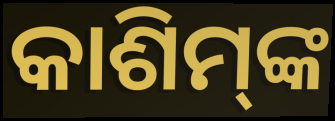
କାଶିମ୍‍ଙ୍କ